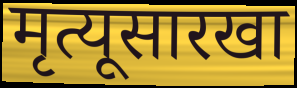
मृत्यूसारखा